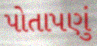
પોતાપણું